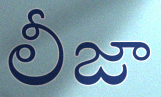
లీజా